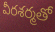
వీరశర్మతో